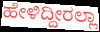
ಹೇಳಿದ್ದೀರಲ್ಲಾ